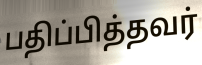
பதிப்பித்தவர்